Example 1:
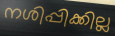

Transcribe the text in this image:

നശിപ്പിക്കില്ല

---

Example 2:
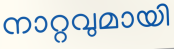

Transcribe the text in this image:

നാറ്റവുമായി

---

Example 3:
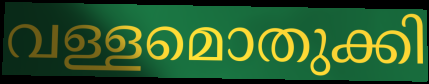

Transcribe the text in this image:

വള്ളമൊതുക്കി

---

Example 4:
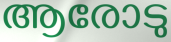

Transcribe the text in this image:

ആരോടു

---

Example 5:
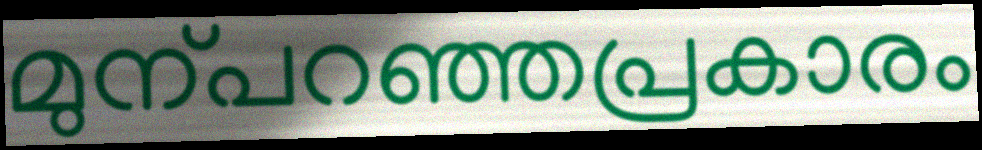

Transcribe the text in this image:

മുന്പറഞ്ഞപ്രകാരം